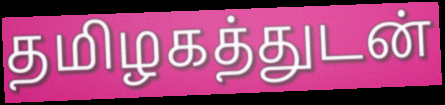
தமிழகத்துடன்